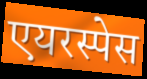
एयरस्पेस